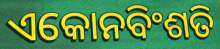
ଏକୋନବିଂଶତି